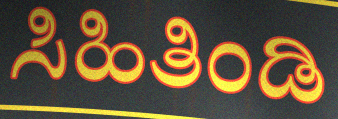
ಸಿಹಿತಿಂಡಿ